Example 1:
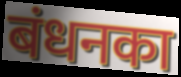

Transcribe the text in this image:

बंधनका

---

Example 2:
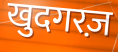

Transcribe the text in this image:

खुदगरज़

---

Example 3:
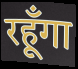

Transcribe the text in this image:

रहूँगा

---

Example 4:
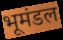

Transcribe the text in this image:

भूमंडल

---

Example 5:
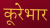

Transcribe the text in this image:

कूरेभार